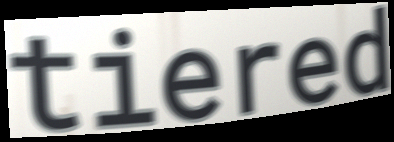
tiered